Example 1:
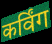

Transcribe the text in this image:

कर्विंग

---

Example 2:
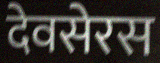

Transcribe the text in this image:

देवसेरस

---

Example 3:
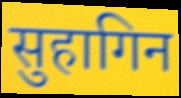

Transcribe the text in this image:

सुहागिन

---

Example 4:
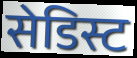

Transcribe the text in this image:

सेडिस्ट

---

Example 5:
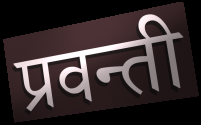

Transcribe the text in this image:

प्रवन्ती